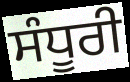
ਸੰਧੂਰੀ